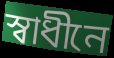
স্বাধীনে